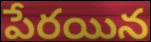
పేరయిన